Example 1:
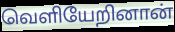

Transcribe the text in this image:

வெளியேறினான்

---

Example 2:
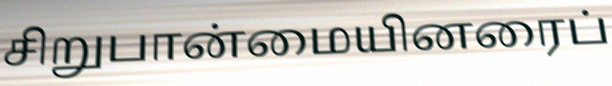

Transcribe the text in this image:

சிறுபான்மையினரைப்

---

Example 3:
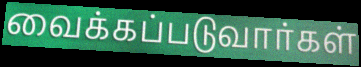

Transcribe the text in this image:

வைக்கப்படுவார்கள்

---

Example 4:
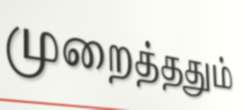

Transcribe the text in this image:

முறைத்ததும்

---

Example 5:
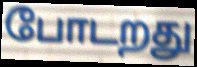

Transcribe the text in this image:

போடறது